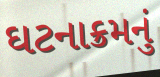
ઘટનાક્રમનું